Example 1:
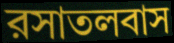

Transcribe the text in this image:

রসাতলবাস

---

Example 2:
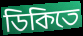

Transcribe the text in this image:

ডিকিতে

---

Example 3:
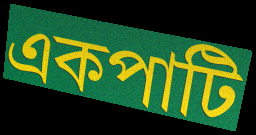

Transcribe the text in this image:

একপাটি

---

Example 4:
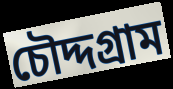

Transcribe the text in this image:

চৌদ্দগ্রাম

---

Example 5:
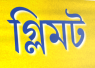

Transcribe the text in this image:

গ্লিমট